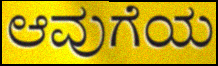
ಆವುಗೆಯ